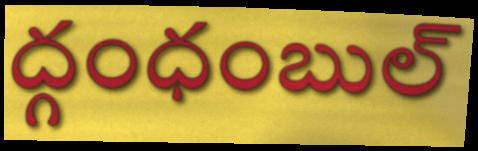
ద్గంధంబుల్